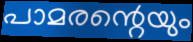
പാമരന്റെയും